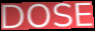
DOSE